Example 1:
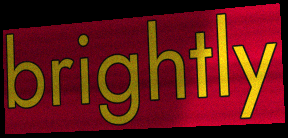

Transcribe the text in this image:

brightly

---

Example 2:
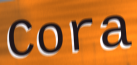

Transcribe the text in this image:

Cora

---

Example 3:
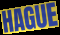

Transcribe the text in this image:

HAGUE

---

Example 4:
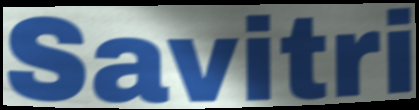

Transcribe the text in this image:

Savitri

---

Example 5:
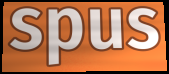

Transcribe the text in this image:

spus